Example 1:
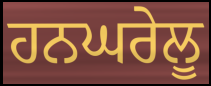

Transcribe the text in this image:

ਹਨਘਰੇਲੂ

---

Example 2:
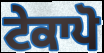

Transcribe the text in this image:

ਟੇਕਾਪੋ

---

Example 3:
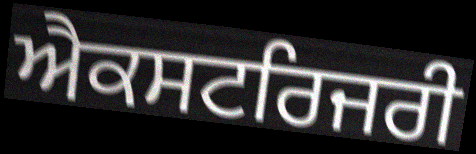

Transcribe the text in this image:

ਐਕਸਟਰਿਜਰੀ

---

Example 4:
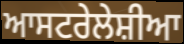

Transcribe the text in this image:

ਆਸਟਰੇਲੇਸ਼ੀਆ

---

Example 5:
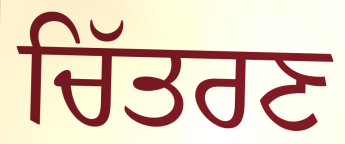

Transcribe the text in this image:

ਚਿੱਤਰਣ